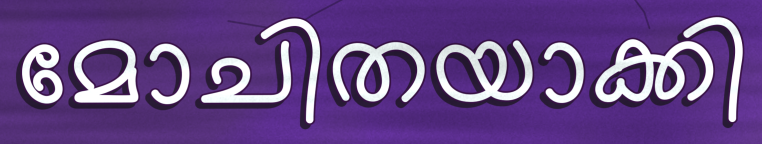
മോചിതയാക്കി